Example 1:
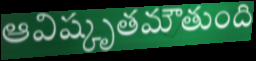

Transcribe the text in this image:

ఆవిష్కృతమౌతుంది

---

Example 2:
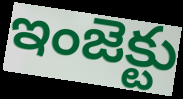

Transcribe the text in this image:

ఇంజెక్టు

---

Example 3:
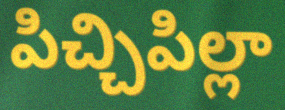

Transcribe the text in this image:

పిచ్చిపిల్లా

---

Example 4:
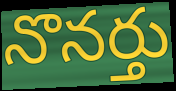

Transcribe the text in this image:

నొనర్తు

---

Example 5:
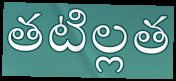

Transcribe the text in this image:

తటిల్లత